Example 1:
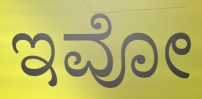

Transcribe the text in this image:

ಇವೋ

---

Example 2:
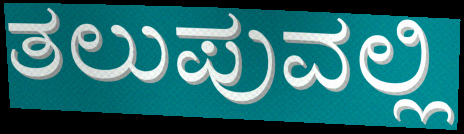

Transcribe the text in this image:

ತಲುಪುವಲ್ಲಿ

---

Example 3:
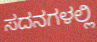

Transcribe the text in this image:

ಸದನಗಳಲ್ಲಿ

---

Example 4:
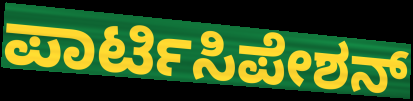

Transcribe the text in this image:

ಪಾರ್ಟಿಸಿಪೇಶನ್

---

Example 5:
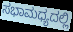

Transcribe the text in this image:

ಸಭಾಮಧ್ಯದಲ್ಲಿ